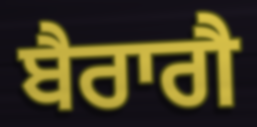
ਬੈਰਾਗੈ